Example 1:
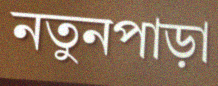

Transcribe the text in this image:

নতুনপাড়া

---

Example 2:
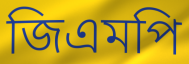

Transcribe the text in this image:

জিএমপি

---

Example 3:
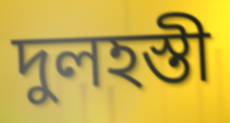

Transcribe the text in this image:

দুলহস্তী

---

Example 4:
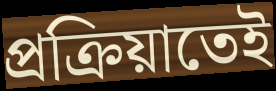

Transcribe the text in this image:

প্রক্রিয়াতেই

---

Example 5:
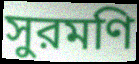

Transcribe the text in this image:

সুরমণি